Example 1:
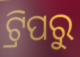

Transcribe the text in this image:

ଟ୍ରିପରୁ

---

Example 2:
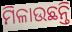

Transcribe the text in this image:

ମିଳାଉଛନ୍ତି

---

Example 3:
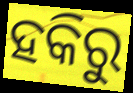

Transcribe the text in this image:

ହକିରୁ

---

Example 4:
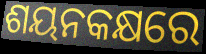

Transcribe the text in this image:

ଶୟନକକ୍ଷରେ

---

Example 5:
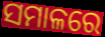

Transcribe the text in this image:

ସମାଳରେ